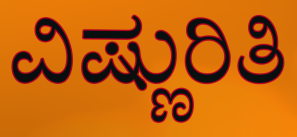
ವಿಷ್ಣುರಿತಿ